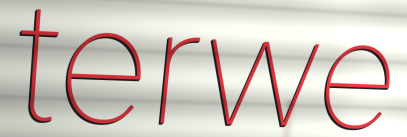
terwe